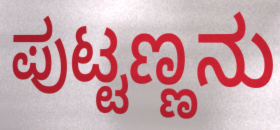
ಪುಟ್ಟಣ್ಣನು